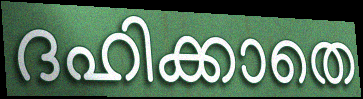
ദഹിക്കാതെ